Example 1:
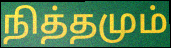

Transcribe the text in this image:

நித்தமும்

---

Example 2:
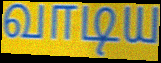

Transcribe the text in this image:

வாடிய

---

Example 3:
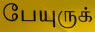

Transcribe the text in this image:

பேயுருக்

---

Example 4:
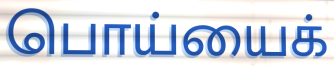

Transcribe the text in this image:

பொய்யைக்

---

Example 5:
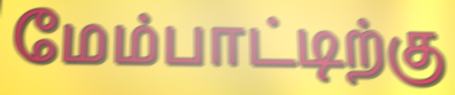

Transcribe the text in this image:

மேம்பாட்டிற்கு